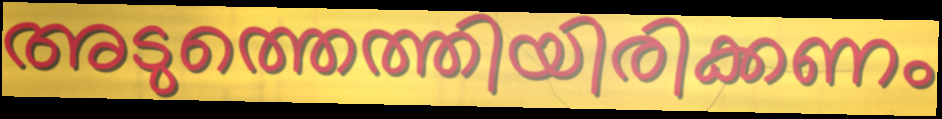
അടുത്തെത്തിയിരിക്കണം